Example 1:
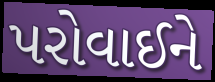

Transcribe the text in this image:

પરોવાઈને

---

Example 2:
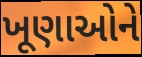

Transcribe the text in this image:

ખૂણાઓને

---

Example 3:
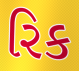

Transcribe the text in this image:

રિક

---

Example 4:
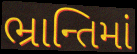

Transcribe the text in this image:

ભ્રાન્તિમાં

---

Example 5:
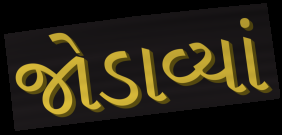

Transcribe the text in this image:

જોડાવ્યાં